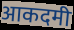
आकदमी